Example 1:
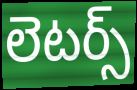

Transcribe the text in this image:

లెటర్స్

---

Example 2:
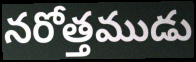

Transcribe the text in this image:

నరోత్తముడు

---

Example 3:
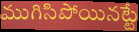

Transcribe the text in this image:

ముగిసిపోయినట్టే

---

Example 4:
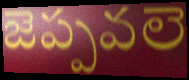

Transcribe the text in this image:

జెప్పవలె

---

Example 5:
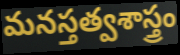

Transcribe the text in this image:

మనస్తత్వశాస్త్రం